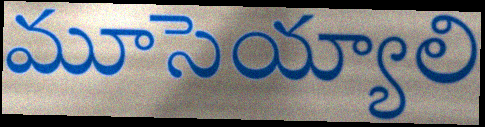
మూసెయ్యాలి